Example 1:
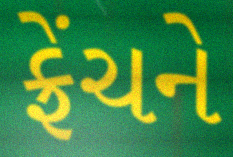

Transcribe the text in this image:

ફ્રેંચને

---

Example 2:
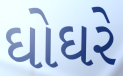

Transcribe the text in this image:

ઘોઘરે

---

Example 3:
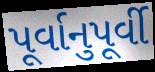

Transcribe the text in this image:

પૂર્વાનુપૂર્વી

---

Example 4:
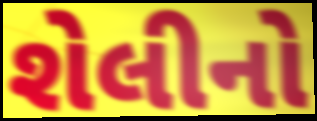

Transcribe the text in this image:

શેલીનો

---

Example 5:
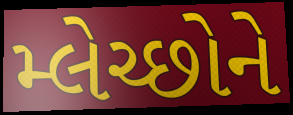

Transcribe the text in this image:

મ્લેચ્છોને